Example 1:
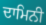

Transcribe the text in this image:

ਦਾਮਿਨੀ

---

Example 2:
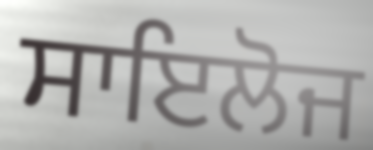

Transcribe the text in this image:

ਸਾਇਲੋਜ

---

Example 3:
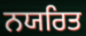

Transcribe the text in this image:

ਨਯਰਿਤ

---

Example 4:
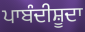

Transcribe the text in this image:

ਪਾਬੰਦੀਸ਼ੂਦਾ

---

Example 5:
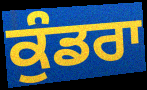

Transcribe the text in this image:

ਕੁੰਡਰਾ